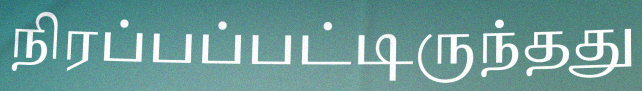
நிரப்பப்பட்டிருந்தது